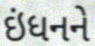
ઇંધનને